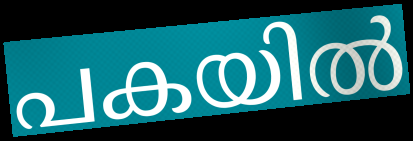
പകയിൽ